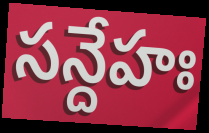
సన్దేహః